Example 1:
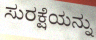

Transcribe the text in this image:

ಸುರಕ್ಷೆಯನ್ನು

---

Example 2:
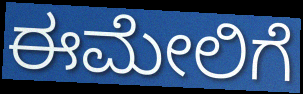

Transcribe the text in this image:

ಈಮೇಲಿಗೆ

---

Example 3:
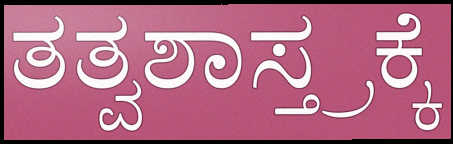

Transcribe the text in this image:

ತತ್ವಶಾಸ್ತ್ರಕ್ಕೆ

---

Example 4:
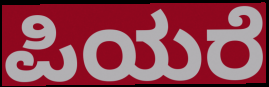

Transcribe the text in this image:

ಪಿಯರೆ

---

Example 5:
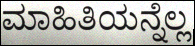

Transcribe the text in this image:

ಮಾಹಿತಿಯನ್ನೆಲ್ಲ